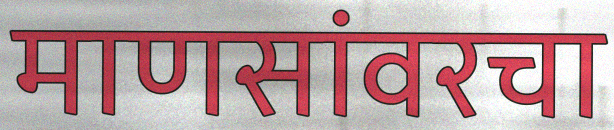
माणसांवरचा